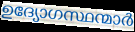
ഉദ്യോഗസ്ഥന്മാർ